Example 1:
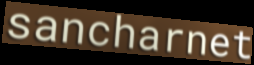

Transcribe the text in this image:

sancharnet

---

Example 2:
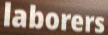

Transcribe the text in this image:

laborers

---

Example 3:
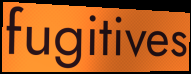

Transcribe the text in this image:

fugitives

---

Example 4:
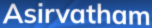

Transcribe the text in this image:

Asirvatham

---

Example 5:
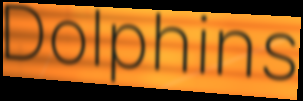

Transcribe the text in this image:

Dolphins